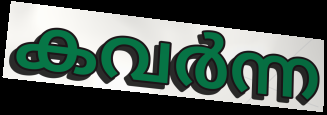
കവർന്ന